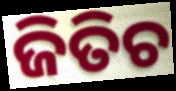
ଜିତିଚ